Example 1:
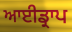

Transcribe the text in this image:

ਆਈਡ੍ਰਾਪ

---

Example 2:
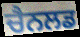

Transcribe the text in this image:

ਚੈਨਲਡ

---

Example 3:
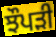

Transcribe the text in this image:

ਝੌਪੜੀ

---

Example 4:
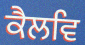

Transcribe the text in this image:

ਕੈਲਵਿ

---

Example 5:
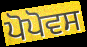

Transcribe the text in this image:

ਪੋਪੋਵਸ